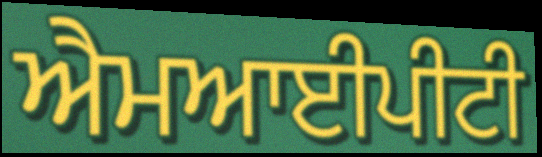
ਐਮਆਈਪੀਟੀ